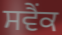
ਸਵੈਂਕ